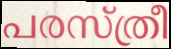
പരസ്ത്രീ